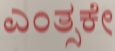
ಎಂತ್ಸಕೇ